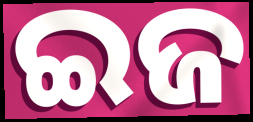
ଇଜ